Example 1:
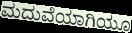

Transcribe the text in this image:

ಮದುವೆಯಾಗಿಯೂ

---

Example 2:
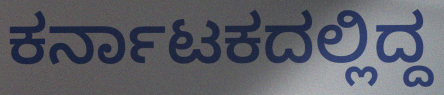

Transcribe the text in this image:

ಕರ್ನಾಟಕದಲ್ಲಿದ್ದ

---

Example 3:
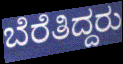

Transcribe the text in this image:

ಬೆರೆತಿದ್ದರು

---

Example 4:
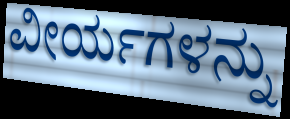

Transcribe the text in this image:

ವೀರ್ಯಗಳನ್ನು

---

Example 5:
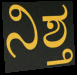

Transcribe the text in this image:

ನಿಶ್ತ